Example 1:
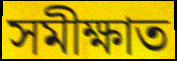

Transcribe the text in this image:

সমীক্ষাত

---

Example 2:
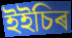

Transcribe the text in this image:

ইইচিৰ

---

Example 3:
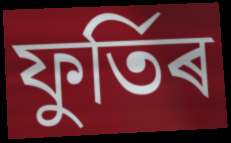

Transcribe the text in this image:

ফুৰ্তিৰ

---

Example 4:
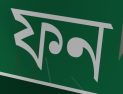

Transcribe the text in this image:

ফন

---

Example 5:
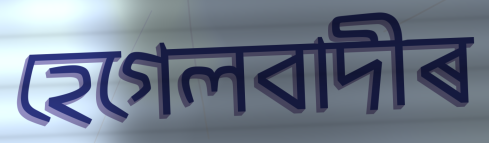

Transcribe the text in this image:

হেগেলবাদীৰ